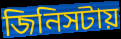
জিনিসটায়